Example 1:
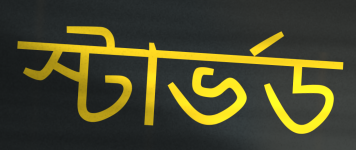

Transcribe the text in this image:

স্টার্ভড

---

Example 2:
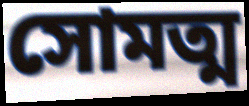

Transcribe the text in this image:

সোমত্ম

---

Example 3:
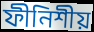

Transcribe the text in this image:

ফীনিশীয়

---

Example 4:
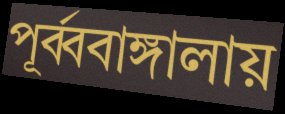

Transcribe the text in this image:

পূর্ব্ববাঙ্গালায়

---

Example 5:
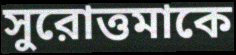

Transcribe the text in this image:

সুরোত্তমাকে